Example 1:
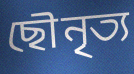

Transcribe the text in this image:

ছৌনৃত্য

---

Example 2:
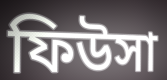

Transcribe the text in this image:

ফিউসা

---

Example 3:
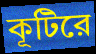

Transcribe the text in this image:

কূটিরে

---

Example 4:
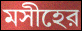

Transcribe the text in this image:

মসীহের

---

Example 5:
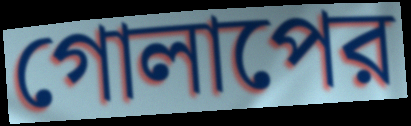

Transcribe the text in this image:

গোলাপের